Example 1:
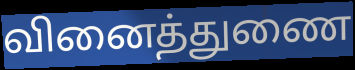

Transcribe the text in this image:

வினைத்துணை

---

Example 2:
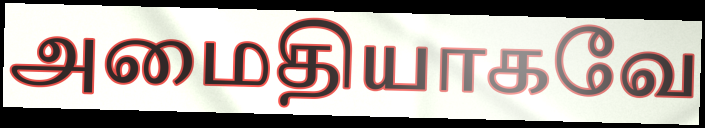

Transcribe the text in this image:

அமைதியாகவே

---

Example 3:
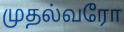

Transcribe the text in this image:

முதல்வரோ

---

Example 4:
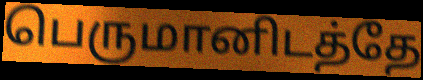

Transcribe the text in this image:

பெருமானிடத்தே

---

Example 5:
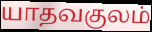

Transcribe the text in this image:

யாதவகுலம்